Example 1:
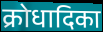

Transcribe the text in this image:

क्रोधादिका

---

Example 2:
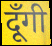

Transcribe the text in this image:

दूँगी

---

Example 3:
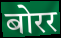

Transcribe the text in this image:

बोरर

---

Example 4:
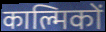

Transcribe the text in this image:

काल्मिकों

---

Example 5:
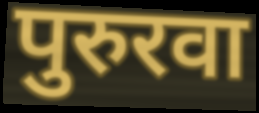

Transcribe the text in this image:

पुरुरवा